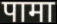
पामा